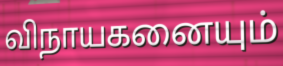
விநாயகனையும்